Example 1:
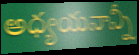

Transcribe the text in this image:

అధ్యయనాన్నీ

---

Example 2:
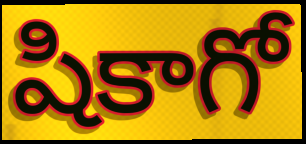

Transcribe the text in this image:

షికాగో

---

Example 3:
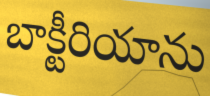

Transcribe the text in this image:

బాక్టీరియాను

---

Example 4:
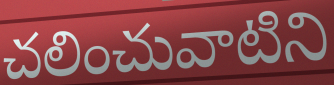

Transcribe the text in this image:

చలించువాటిని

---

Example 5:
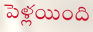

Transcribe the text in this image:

పెళ్లయింది